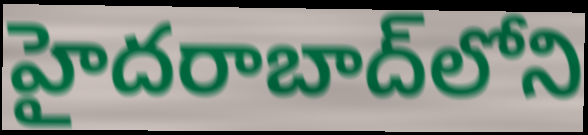
హైదరాబాద్‌లోని